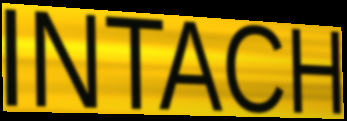
INTACH